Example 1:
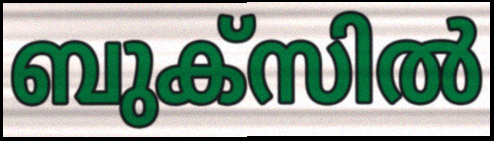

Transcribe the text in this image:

ബുക്സിൽ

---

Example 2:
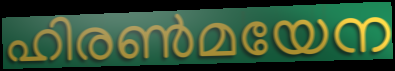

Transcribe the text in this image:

ഹിരൺമയേന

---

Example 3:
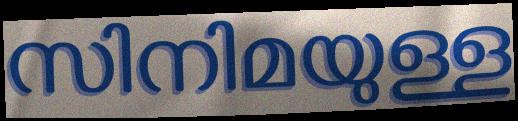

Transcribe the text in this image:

സിനിമയുള്ള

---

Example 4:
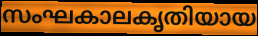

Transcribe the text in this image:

സംഘകാലകൃതിയായ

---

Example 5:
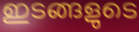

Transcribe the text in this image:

ഇടങ്ങളുടെ